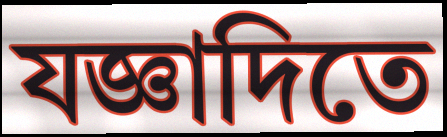
যজ্ঞাদিতে